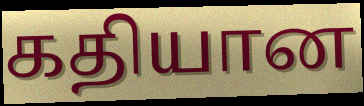
கதியான